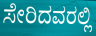
ಸೇರಿದವರಲ್ಲಿ